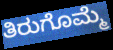
ತಿರುಗೊಮ್ಮೆ